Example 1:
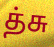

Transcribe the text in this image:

த்சு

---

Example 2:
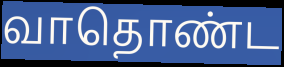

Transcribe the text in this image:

வாதொண்ட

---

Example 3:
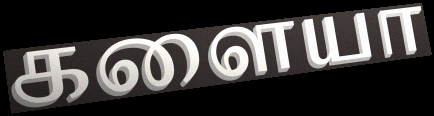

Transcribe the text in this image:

களையா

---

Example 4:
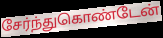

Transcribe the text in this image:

சேர்ந்துகொண்டேன்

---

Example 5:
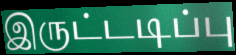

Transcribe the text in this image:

இருட்டடிப்பு